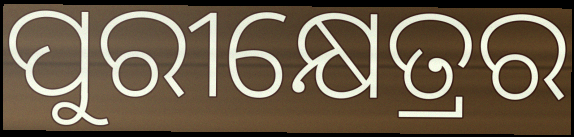
ପୁରୀକ୍ଷେତ୍ରର